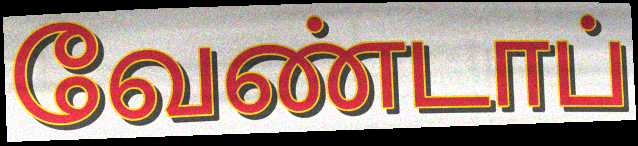
வேண்டாப்